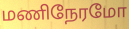
மணிநேரமோ